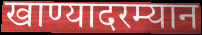
खाण्यादरम्यान